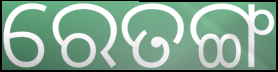
ରେତଙ୍ଗ